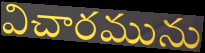
విచారమును